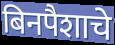
बिनपैशाचे